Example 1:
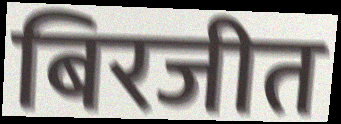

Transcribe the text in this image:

बिरजीत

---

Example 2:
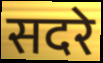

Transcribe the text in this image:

सदरे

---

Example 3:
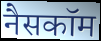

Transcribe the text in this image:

नैसकॉम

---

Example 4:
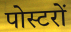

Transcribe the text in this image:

पोस्टरों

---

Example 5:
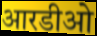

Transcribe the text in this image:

आरडीओ